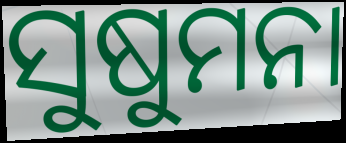
ସୁଷୁମନା